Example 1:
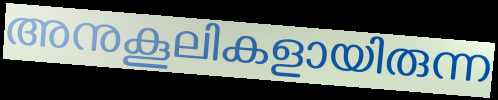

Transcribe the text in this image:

അനുകൂലികളായിരുന്ന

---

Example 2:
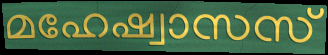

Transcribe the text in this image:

മഹേഷ്വാസസ്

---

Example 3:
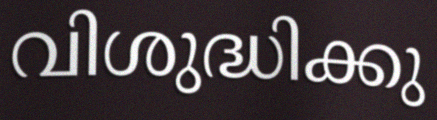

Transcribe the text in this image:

വിശുദ്ധിക്കു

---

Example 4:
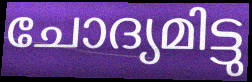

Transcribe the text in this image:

ചോദ്യമിട്ടു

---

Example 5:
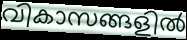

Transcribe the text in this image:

വികാസങ്ങളിൽ